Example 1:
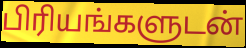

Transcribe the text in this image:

பிரியங்களுடன்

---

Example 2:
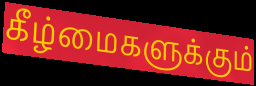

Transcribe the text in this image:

கீழ்மைகளுக்கும்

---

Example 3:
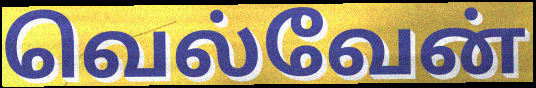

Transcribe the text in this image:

வெல்வேன்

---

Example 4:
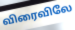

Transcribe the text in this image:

விரைவிலே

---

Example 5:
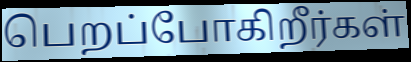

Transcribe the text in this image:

பெறப்போகிறீர்கள்